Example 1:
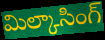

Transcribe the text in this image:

మిల్కాసింగ్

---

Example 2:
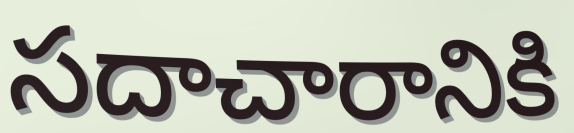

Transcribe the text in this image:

సదాచారానికి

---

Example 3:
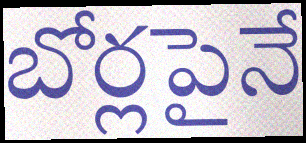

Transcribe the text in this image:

బోర్లపైనే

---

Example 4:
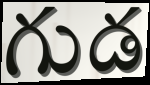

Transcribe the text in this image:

గుడ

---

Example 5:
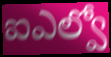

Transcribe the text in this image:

ఐఎల్వో